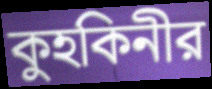
কুহকিনীর